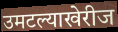
उमटल्याखेरीज